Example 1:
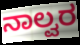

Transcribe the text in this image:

ನಾಲ್ವರ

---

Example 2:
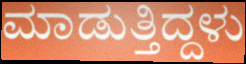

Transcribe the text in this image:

ಮಾಡುತ್ತಿದ್ದಳು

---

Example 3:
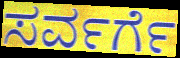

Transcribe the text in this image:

ಸರ್ವರ್ಗೆ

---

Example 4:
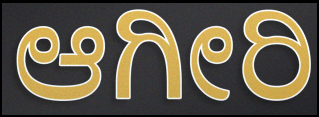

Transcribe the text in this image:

ಆಗೀರಿ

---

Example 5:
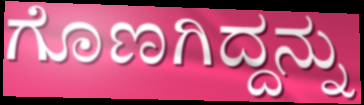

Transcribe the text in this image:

ಗೊಣಗಿದ್ದನ್ನು